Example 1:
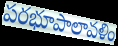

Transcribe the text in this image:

పరభూపాలావళిం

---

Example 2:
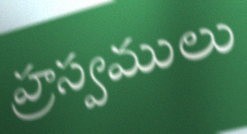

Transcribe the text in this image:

హ్రస్వములు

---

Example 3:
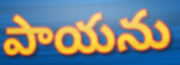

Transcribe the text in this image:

పాయను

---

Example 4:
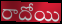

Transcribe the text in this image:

రాదోయి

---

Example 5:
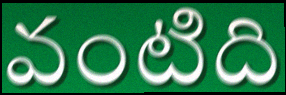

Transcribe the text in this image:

వంటిది